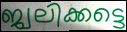
ജ്വലിക്കട്ടെ